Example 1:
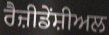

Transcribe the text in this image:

ਰੈਜ਼ੀਡੇਂਸ਼ੀਅਲ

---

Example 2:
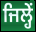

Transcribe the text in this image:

ਜਿਲ੍ਹੇਂ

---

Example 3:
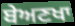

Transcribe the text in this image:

ਬੇਅਣਖਾ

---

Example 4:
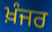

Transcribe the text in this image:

ਖ਼ੰਜਰ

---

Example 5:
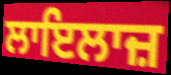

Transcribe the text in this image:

ਲਾਇਲਾਜ਼